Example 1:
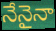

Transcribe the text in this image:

నేనైనా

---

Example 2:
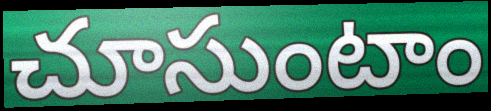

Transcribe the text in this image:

చూసుంటాం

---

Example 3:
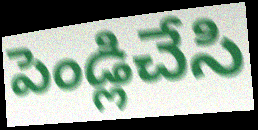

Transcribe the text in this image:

పెండ్లిచేసి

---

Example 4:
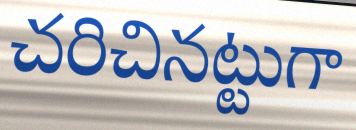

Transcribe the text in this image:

చరిచినట్టుగా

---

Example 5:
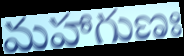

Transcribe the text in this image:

మహాగుణః